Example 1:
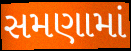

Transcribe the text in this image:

સમણામાં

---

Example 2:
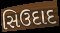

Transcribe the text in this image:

સિઉદાદ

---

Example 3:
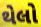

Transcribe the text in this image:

થેલો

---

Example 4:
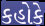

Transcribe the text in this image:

કહોકે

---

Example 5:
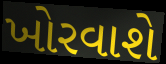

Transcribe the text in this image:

ખોરવાશે